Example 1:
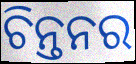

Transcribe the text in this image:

ଚିନ୍ତନର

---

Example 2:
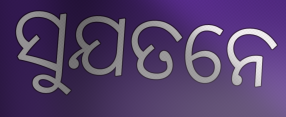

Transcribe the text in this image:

ସୁଯତନେ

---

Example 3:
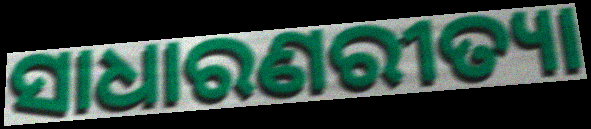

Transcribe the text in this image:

ସାଧାରଣରୀତ୍ୟା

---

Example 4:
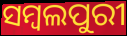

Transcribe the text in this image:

ସମ୍ବଲପୁରୀ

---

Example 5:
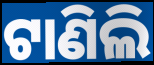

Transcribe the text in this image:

ଟାଣିଲି